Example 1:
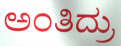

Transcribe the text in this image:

ಅಂತಿದ್ರು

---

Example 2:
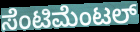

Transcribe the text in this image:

ಸೆಂಟಿಮೆಂಟಲ್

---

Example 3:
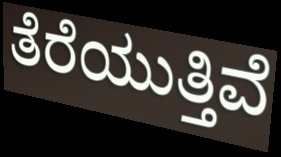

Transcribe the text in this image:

ತೆರೆಯುತ್ತಿವೆ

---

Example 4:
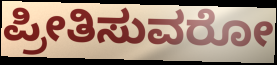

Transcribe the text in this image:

ಪ್ರೀತಿಸುವರೋ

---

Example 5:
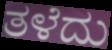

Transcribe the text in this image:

ತಳೆದು